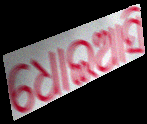
ଧୋଇଆସି